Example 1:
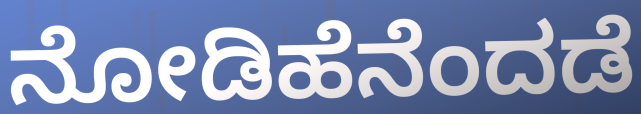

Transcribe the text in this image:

ನೋಡಿಹೆನೆಂದಡೆ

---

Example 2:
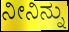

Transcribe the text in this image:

ನೀನಿನ್ನು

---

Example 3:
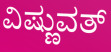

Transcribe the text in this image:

ವಿಷ್ಣುವತ್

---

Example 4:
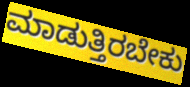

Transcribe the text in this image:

ಮಾಡುತ್ತಿರಬೇಕು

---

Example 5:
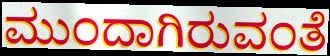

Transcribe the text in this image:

ಮುಂದಾಗಿರುವಂತೆ